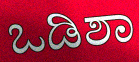
ಒಡಿಶಾ